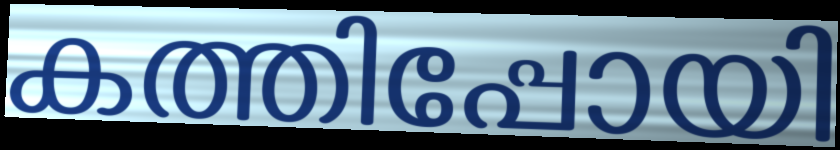
കത്തിപ്പോയി